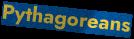
Pythagoreans